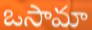
ఒసామా